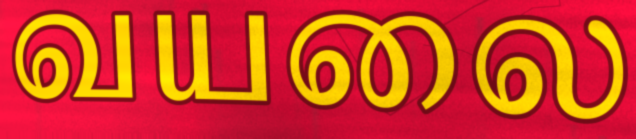
வயலை